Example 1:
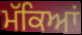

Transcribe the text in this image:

ਮੱਕਿਆਂ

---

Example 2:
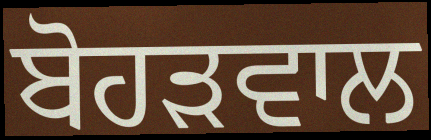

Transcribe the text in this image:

ਬੋਹੜਵਾਲ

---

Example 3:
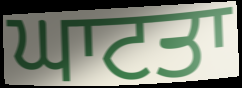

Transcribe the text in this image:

ਘਾਟਤਾ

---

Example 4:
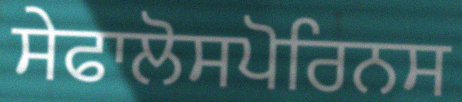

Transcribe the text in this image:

ਸੇਫਾਲੋਸਪੋਰਿਨਸ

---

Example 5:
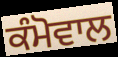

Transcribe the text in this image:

ਕੰਮੋਵਾਲ